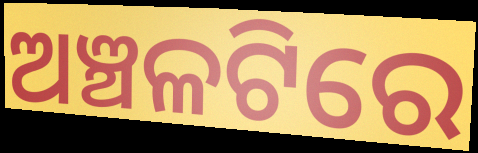
ଅଞ୍ଚଳଟିରେ